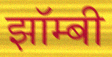
झॉम्बी